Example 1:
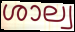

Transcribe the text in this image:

ശാല്വ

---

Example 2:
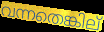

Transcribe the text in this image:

വന്നതെങ്കില്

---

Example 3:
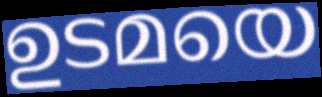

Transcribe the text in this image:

ഉടമയെ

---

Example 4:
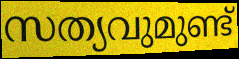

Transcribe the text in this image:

സത്യവുമുണ്ട്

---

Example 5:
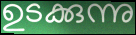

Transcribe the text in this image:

ഉടക്കുന്നു